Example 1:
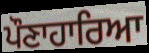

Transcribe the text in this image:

ਪੌਣਾਹਾਰਿਆ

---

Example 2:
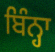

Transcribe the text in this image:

ਬਿੰਨ੍ਹਾ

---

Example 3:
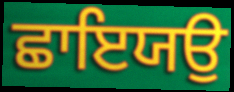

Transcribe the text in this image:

ਛਾਇਯਉ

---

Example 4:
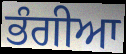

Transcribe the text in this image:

ਭੰਗੀਆ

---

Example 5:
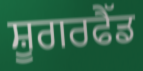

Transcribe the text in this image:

ਸ਼ੂਗਰਫੈੱਡ